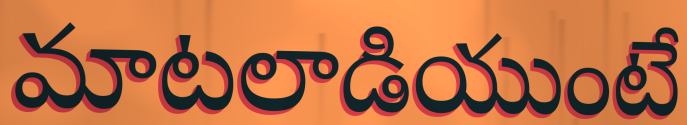
మాటలాడియుంటే